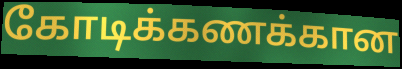
கோடிக்கணக்கான